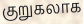
குறுகலாக